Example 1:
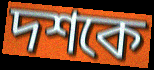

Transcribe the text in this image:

দশকে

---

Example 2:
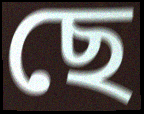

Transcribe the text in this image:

ছে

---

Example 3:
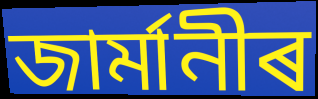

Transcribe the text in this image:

জাৰ্মানীৰ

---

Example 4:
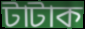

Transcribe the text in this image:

টাটাক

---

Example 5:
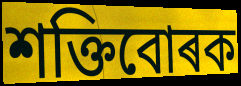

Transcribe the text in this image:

শক্তিবোৰক